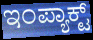
ಇಂಪ್ಯಾಕ್ಟ್